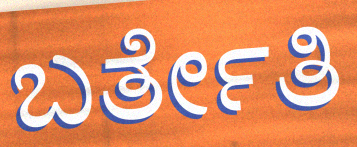
ಬರ್ತೇತಿ